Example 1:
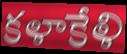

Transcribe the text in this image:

కళాకేళి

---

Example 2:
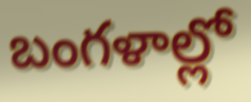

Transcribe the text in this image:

బంగళాల్లో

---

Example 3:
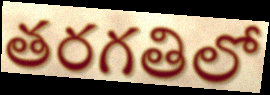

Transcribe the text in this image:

తరగతిలో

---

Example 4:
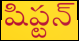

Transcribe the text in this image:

షిప్టన్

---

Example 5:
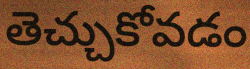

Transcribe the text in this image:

తెచ్చుకోవడం